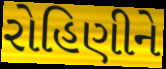
રોહિણીને